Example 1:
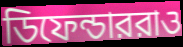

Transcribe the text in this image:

ডিফেন্ডাররাও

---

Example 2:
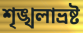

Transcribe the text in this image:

শৃঙ্খলাভ্রষ্ট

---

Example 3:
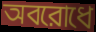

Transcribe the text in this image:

অবরোধে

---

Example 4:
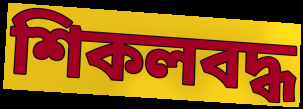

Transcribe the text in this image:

শিকলবদ্ধ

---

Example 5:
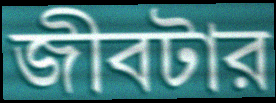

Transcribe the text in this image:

জীবটার